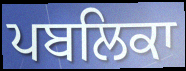
ਪਬਲਿਕਾ